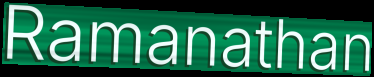
Ramanathan